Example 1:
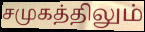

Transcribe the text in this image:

சமுகத்திலும்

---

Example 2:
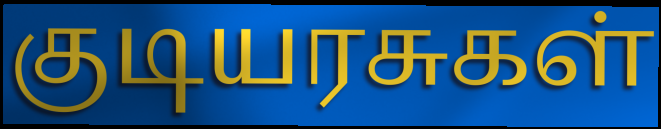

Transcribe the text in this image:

குடியரசுகள்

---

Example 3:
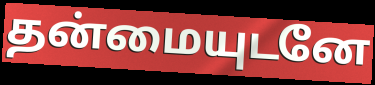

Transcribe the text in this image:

தன்மையுடனே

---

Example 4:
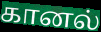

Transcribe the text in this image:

கானல்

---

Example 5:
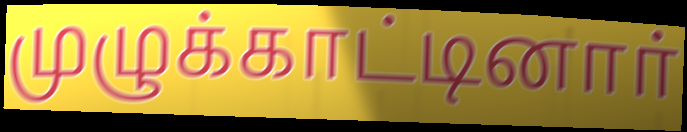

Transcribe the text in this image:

முழுக்காட்டினார்